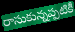
రాసుకున్నప్పటికీ